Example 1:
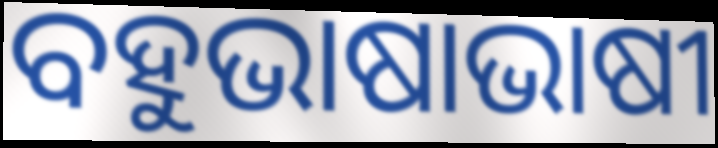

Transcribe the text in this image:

ବହୁଭାଷାଭାଷୀ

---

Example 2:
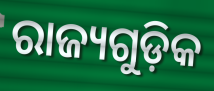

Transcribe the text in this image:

ରାଜ୍ୟଗୁଡ଼ିକ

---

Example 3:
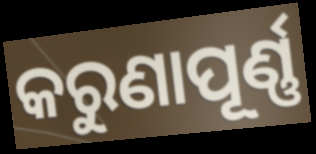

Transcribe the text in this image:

କରୁଣାପୂର୍ଣ୍ଣ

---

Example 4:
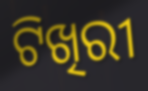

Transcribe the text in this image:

ଟିଖିରୀ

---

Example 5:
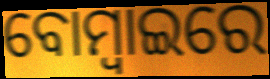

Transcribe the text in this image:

ବୋମ୍ୱାଇରେ